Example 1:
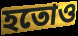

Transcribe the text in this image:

হতোও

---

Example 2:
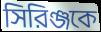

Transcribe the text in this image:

সিরিঞ্জকে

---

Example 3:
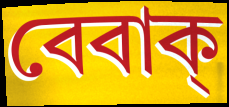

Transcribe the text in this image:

বেবাক্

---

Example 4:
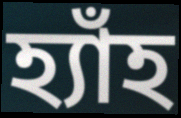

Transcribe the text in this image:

হ্যাঁহ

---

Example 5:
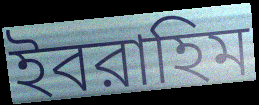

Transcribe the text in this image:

ইবরাহিম